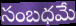
సంబధమే